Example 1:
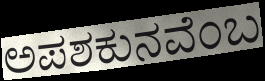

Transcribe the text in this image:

ಅಪಶಕುನವೆಂಬ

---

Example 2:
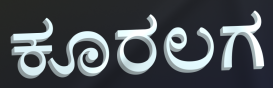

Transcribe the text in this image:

ಕೂರಲಗ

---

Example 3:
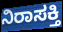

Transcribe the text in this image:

ನಿರಾಸಕ್ತಿ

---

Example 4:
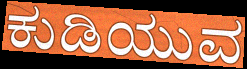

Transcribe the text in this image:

ಕುಡಿಯುವ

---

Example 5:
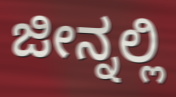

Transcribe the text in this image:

ಜೀನ್ನಲ್ಲಿ